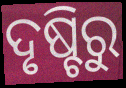
ଦୃଷ୍ଚିରୁ